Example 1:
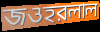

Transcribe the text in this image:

জওহরলাল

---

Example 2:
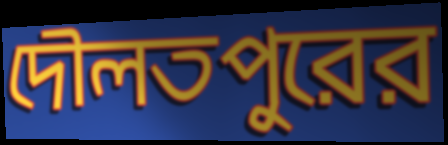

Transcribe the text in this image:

দৌলতপুরের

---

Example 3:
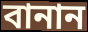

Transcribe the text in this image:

বানান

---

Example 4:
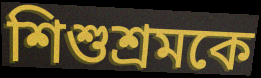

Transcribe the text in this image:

শিশুশ্রমকে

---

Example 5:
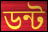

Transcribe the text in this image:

ডন্ট